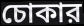
চোকার